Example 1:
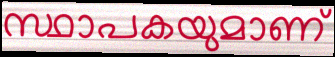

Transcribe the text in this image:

സ്ഥാപകയുമാണ്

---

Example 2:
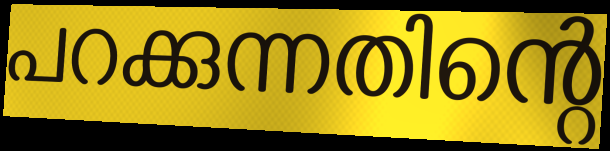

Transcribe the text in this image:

പറക്കുന്നതിന്റെ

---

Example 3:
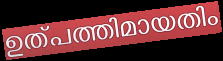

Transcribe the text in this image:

ഉത്പത്തിമായതിം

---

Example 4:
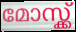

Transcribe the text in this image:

മോസ്ക്ക്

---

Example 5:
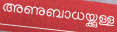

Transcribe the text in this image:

അണുബാധയ്ക്കുള്ള